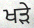
ਖੜੇ